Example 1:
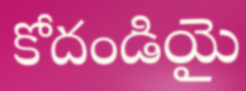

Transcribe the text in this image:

కోదండియై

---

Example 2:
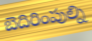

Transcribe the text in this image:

బెదిరింపుల్ని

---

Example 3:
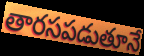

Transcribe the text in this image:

తారసపడుతూనే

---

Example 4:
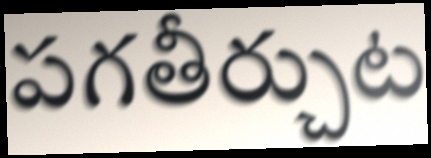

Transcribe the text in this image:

పగతీర్చుట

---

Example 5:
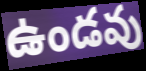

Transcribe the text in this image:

ఉండవు